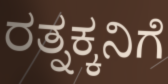
ರತ್ನಕ್ಕನಿಗೆ